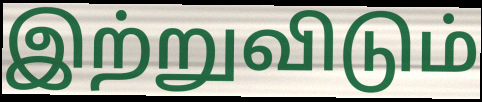
இற்றுவிடும்